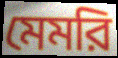
মেমরি